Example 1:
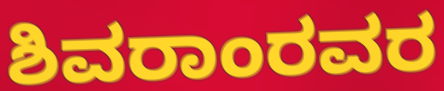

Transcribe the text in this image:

ಶಿವರಾಂರವರ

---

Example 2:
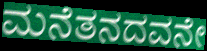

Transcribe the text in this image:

ಮನೆತನದವನೇ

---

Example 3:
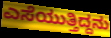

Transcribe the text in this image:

ಎಸೆಯುತ್ತಿದ್ದನು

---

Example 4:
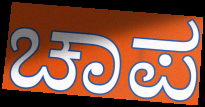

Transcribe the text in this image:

ಚಾಪ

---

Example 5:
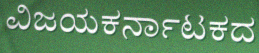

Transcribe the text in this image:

ವಿಜಯಕರ್ನಾಟಕದ